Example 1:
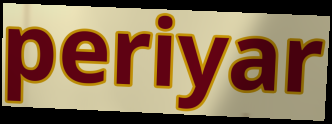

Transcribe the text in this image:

periyar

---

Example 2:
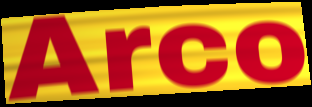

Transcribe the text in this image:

Arco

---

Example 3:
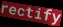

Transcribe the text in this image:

rectify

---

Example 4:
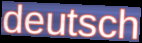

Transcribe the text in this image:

deutsch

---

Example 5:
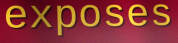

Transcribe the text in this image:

exposes